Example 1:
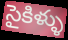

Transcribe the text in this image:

సైకిళ్ళు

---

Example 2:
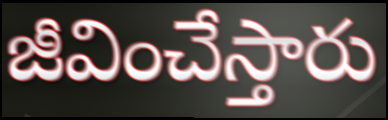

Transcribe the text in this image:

జీవించేస్తారు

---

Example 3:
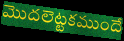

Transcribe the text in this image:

మొదలెట్టకముందే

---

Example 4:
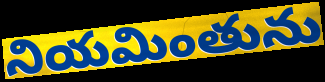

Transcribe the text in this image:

నియమింతును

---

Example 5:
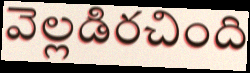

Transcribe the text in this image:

వెల్లడిరచింది